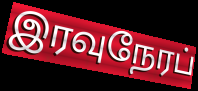
இரவுநேரப்